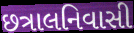
છત્રાલનિવાસી